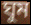
ঘুম